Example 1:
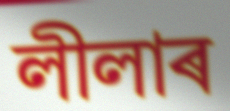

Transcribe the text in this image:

লীলাৰ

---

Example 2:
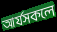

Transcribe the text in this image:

আৰ্যসকলে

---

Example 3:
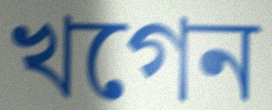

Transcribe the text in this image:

খগেন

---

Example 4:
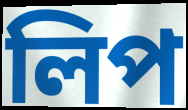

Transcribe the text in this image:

লিপ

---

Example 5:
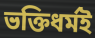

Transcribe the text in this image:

ভক্তিধৰ্মই